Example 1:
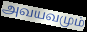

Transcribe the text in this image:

அவயவமும்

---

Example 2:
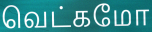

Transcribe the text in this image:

வெட்கமோ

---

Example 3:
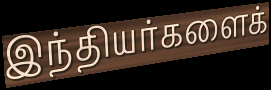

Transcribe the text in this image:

இந்தியர்களைக்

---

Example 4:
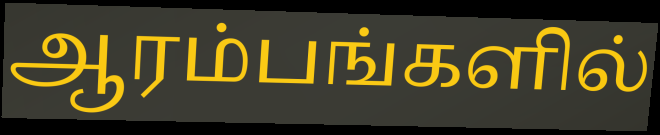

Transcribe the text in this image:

ஆரம்பங்களில்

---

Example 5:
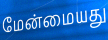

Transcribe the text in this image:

மேன்மையது